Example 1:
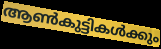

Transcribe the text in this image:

ആൺകുട്ടികൾക്കും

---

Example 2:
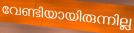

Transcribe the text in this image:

വേണ്ടിയായിരുന്നില്ല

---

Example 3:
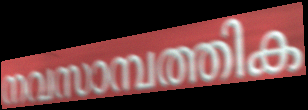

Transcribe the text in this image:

നവസാമ്പത്തിക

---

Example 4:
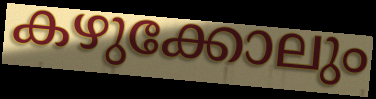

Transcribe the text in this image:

കഴുക്കോലും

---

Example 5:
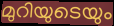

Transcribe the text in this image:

മുറിയുടെയും